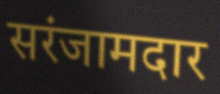
सरंजामदार